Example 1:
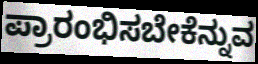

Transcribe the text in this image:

ಪ್ರಾರಂಭಿಸಬೇಕೆನ್ನುವ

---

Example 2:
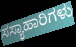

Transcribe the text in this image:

ಸಸ್ಯಾಹಾರಿಗಳು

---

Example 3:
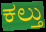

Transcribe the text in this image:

ಕಲ್ತು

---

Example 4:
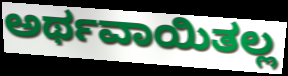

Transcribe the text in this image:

ಅರ್ಥವಾಯಿತಲ್ಲ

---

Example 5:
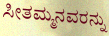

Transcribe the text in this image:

ಸೀತಮ್ಮನವರನ್ನು